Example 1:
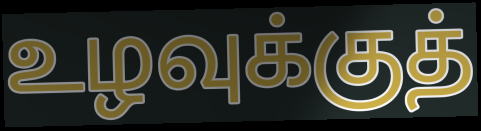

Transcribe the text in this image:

உழவுக்குத்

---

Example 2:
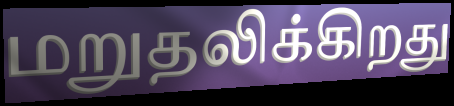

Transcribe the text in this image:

மறுதலிக்கிறது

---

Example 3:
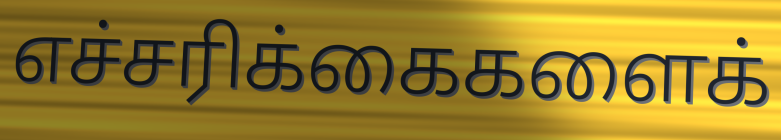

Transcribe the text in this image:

எச்சரிக்கைகளைக்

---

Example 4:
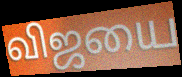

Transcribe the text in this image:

விஜயை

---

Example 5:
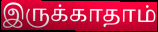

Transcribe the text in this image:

இருக்காதாம்